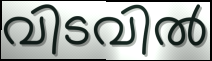
വിടവിൽ